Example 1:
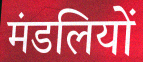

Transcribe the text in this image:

मंडलियों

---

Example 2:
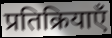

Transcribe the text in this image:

प्रतिक्रियाएँ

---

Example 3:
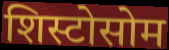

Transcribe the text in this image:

शिस्टोसोम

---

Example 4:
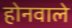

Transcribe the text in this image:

होनवाले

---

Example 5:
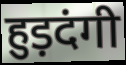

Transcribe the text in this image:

हुड़दंगी